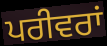
ਪਰੀਵਰਾਂ